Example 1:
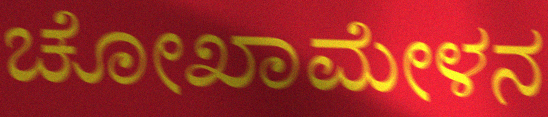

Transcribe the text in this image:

ಚೋಖಾಮೇಳನ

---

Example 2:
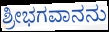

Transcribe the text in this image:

ಶ್ರೀಭಗವಾನನು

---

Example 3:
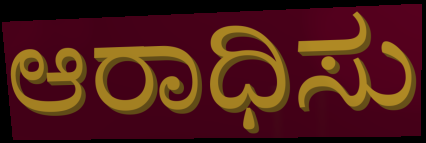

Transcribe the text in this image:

ಆರಾಧಿಸು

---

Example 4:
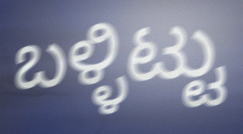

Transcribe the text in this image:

ಬಳ್ಳಿಟ್ಟು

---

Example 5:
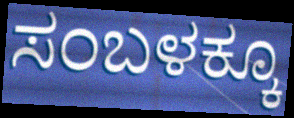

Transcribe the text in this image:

ಸಂಬಳಕ್ಕೂ